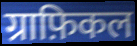
ग्राफ़िकल